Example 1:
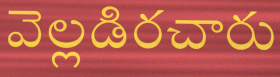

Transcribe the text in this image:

వెల్లడిరచారు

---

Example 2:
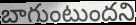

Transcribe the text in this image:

బాగుంటుందని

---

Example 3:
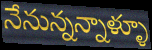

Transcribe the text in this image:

నేనున్నన్నాళ్ళూ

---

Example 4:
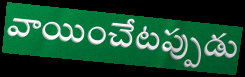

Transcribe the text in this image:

వాయించేటప్పుడు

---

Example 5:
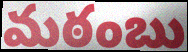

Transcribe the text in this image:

మఠంబు